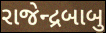
રાજેન્દ્રબાબુ